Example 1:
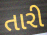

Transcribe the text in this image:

તારી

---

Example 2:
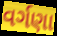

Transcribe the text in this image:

વર્ગણા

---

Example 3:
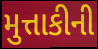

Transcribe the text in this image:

મુત્તાકીની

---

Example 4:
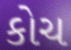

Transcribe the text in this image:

કોચ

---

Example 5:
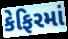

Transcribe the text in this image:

કેફિરમાં